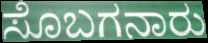
ಸೊಬಗನಾರು